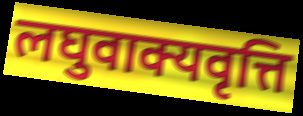
लघुवाक्यवृत्ति